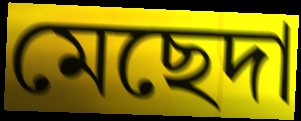
মেছেদা